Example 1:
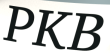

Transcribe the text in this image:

PKB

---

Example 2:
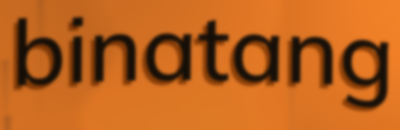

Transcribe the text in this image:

binatang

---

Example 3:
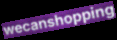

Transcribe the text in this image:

wecanshopping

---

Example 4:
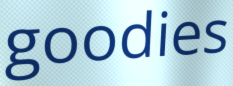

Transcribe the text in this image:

goodies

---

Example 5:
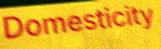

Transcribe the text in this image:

Domesticity